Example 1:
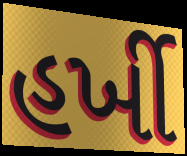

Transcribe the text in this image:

હર્ખી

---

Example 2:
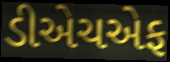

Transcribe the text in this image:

ડીએચએફ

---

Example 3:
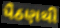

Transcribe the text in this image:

પૈઠણથી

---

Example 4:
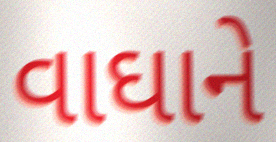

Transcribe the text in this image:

વાઘાને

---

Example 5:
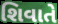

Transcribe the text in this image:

શિવાતે